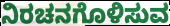
ನಿರಚನಗೊಳಿಸುವ